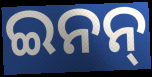
ଇନନ୍